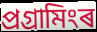
প্ৰগ্ৰামিংৰ